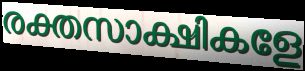
രക്തസാക്ഷികളേ